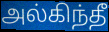
அல்கிந்தீ